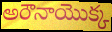
అరౌనాయొక్క